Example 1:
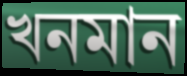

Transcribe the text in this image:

খনমান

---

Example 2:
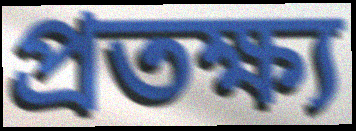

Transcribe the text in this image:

প্ৰতক্ষ্য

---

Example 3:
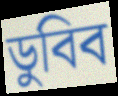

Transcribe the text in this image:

ডুবিব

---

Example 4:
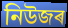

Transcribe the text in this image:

নিউজৰ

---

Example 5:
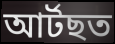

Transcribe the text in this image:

আৰ্টছত